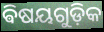
ଵିଷୟଗୁଡ଼ିକ